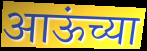
आऊंच्या